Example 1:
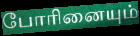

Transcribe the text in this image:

போரினையும்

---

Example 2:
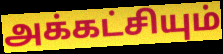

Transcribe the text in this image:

அக்கட்சியும்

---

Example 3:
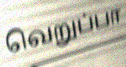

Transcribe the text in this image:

வெறுப்பா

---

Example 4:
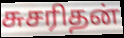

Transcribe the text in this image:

சுசரிதன்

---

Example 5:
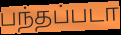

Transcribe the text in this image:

பந்தப்படா